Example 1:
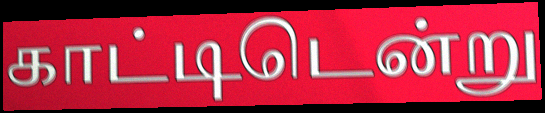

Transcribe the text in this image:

காட்டிடென்று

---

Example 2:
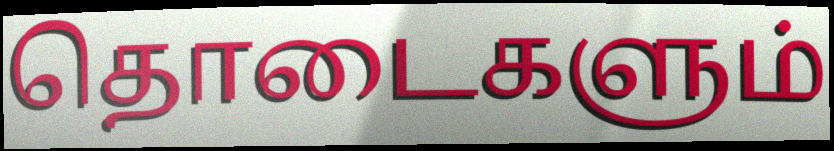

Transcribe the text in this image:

தொடைகளும்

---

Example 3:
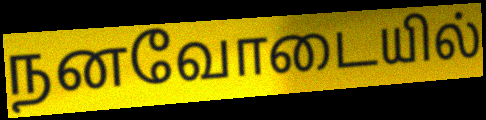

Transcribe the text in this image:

நனவோடையில்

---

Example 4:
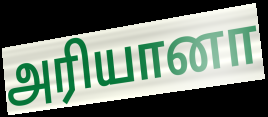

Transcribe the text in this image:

அரியானா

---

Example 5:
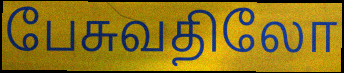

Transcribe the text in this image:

பேசுவதிலோ